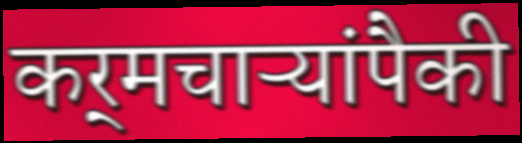
कर्मचाऱ्यांपैकी